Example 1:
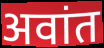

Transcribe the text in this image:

अवांत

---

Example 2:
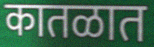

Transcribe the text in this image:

कातळात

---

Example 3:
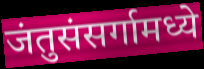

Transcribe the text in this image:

जंतुसंसर्गामध्ये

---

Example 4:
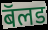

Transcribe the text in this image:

बॅलड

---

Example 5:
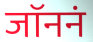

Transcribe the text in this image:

जॉननं